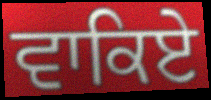
ਵਾਕਿਏ